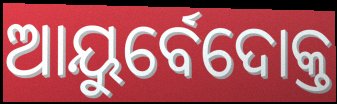
ଆୟୁର୍ବେଦୋକ୍ତ